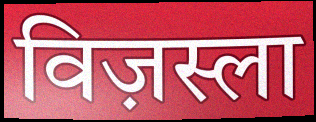
विज़स्ला